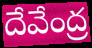
దేవేంద్ర